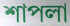
শাপলা